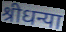
श्रीधन्या